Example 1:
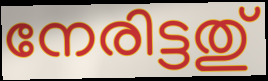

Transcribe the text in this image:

നേരിട്ടതു്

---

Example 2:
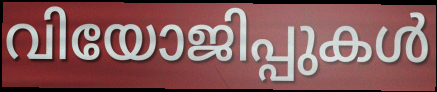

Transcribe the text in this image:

വിയോജിപ്പുകൾ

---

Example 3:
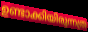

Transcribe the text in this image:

ഉണ്ടാക്കിയിരുന്നത്ര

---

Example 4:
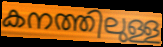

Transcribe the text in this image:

കനത്തിലുള്ള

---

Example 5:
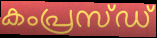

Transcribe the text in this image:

കംപ്രസ്ഡ്